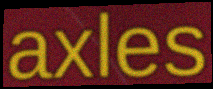
axles